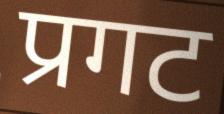
प्रगट